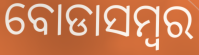
ବୋଡାସମ୍ବର